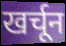
खर्चून